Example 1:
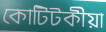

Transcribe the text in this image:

কোটিটকীয়া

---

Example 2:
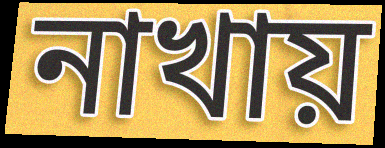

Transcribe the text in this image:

নাখায়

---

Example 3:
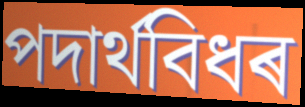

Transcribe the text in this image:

পদাৰ্থবিধৰ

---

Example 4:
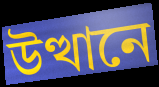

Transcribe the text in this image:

উত্থানে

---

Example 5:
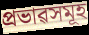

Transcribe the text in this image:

প্ৰভাৱসমূহ